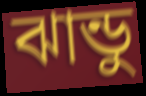
ঝান্ডু